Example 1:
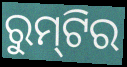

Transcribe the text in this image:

ରୁମ୍‌ଟିର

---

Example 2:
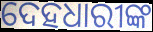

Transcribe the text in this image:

ଦେହଧାରୀଙ୍କ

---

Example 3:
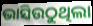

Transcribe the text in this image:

ଭାସିଉଠୁଥିଲା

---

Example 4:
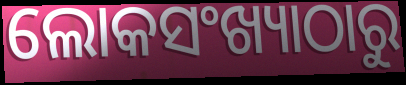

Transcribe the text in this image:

ଲୋକସଂଖ୍ୟାଠାରୁ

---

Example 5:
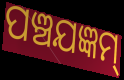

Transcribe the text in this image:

ପଞ୍ଚଯଜ୍ଞମ୍